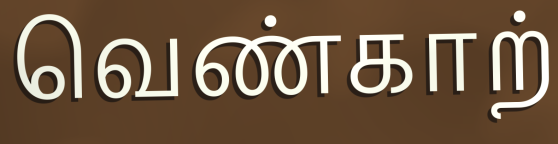
வெண்காற்